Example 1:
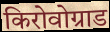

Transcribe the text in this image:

किरोवोग्राड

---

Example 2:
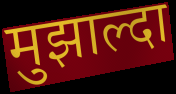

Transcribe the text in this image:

मुझाल्दा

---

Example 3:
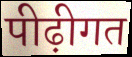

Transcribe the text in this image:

पीढ़ीगत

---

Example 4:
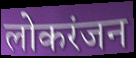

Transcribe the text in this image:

लोकरंजन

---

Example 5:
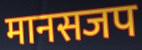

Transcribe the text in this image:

मानसजप